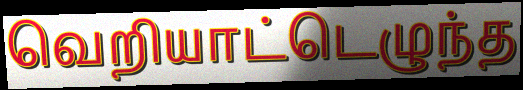
வெறியாட்டெழுந்த